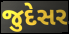
જુદેસર